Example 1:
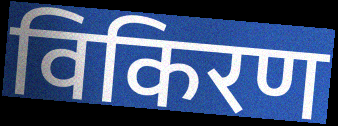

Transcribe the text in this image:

विकिरण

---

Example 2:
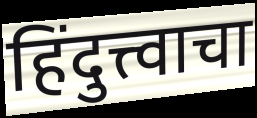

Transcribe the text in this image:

हिंदुत्त्वाचा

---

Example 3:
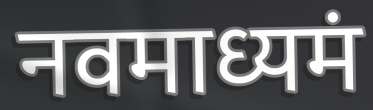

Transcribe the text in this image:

नवमाध्यमं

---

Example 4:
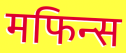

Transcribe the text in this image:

मफिन्स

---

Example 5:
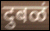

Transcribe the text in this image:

दुबळं